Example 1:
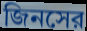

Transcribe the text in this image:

জিনসের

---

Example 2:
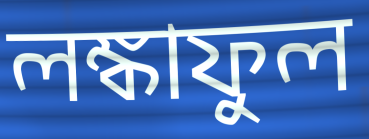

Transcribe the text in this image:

লঙ্কাফুল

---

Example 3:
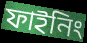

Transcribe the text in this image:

ফাইনিং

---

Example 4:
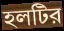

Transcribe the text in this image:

হলটির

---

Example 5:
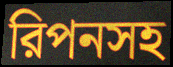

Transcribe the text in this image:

রিপনসহ